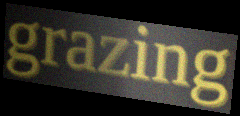
grazing